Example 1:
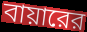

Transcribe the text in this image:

বায়ারের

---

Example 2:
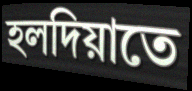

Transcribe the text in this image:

হলদিয়াতে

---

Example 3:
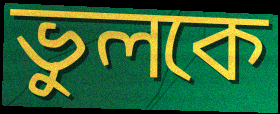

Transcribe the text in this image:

ভুলকে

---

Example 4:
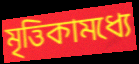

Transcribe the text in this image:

মৃত্তিকামধ্যে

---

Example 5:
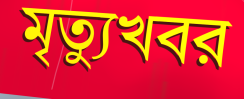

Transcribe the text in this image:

মৃত্যুখবর